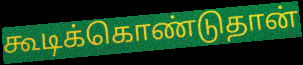
கூடிக்கொண்டுதான்